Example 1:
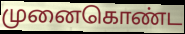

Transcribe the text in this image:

முனைகொண்ட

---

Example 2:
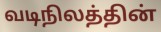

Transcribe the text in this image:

வடிநிலத்தின்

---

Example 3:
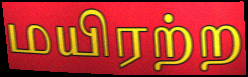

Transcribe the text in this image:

மயிரற்ற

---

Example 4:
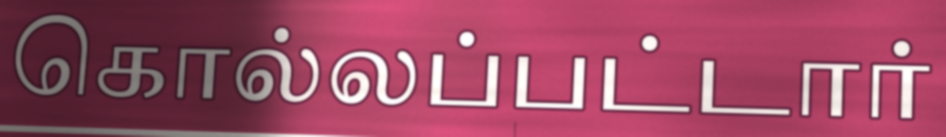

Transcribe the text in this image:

கொல்லப்பட்டார்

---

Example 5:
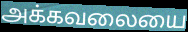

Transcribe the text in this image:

அக்கவலையை